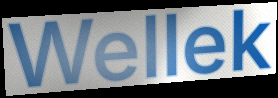
Wellek